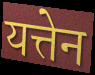
यत्तेन